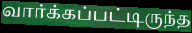
வார்க்கப்பட்டிருந்த